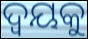
ଦ୍ୱୟକୁ